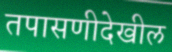
तपासणीदेखील